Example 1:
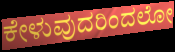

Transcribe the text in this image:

ಕೇಳುವುದರಿಂದಲೋ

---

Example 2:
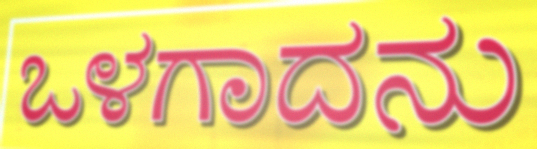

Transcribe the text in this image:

ಒಳಗಾದನು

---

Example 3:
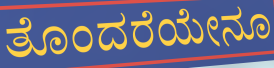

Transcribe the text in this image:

ತೊಂದರೆಯೇನೂ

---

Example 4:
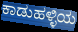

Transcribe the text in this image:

ಕಾಡುಹಳ್ಳಿಯ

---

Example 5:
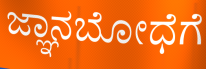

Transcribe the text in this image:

ಜ್ಞಾನಬೋಧೆಗೆ